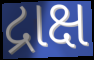
દ્રાક્ષ